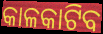
କାଳକାଟିବ